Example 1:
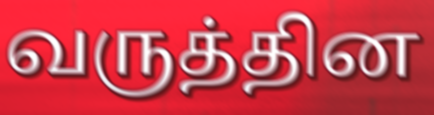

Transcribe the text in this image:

வருத்தின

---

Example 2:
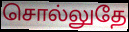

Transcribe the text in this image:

சொல்லுதே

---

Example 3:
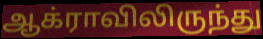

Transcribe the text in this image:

ஆக்ராவிலிருந்து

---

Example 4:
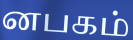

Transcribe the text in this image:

னபகம்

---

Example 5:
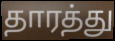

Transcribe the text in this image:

தாரத்து